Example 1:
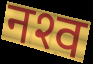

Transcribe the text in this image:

नश्व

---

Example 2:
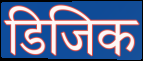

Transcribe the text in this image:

डिजिक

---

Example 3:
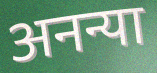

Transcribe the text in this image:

अनन्या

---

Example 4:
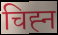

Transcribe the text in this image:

चिह्‍न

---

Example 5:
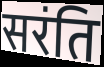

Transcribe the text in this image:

सरंति